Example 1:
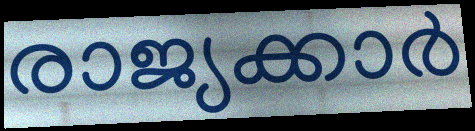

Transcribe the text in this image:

രാജ്യക്കാർ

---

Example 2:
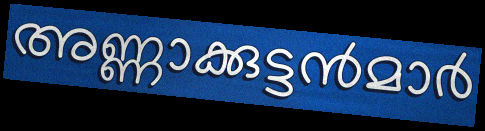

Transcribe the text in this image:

അണ്ണാക്കുട്ടൻമാർ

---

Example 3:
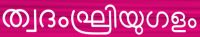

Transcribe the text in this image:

ത്വദംഘ്രിയുഗളം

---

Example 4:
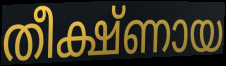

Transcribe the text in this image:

തീക്ഷ്ണായ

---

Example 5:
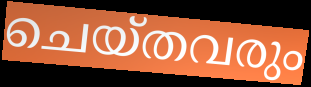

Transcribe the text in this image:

ചെയ്തവരും